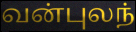
வன்புலந்